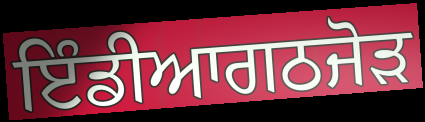
ਇੰਡੀਆਗਠਜੋੜ